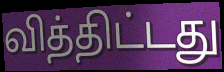
வித்திட்டது